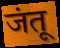
जंतू